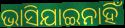
ଭାସିଯାଇନାହିଁ